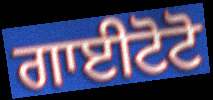
ਗਾਈਟੋਟੋ